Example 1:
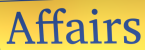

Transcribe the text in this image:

Affairs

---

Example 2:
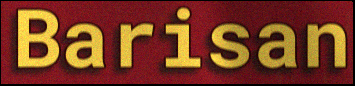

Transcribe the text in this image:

Barisan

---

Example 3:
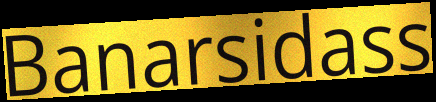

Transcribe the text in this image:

Banarsidass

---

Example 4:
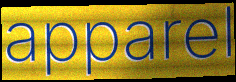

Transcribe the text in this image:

apparel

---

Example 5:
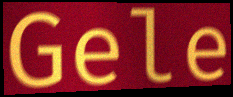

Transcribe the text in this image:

Gele